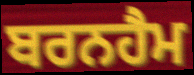
ਬਰਨਹੈਮ